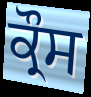
ਕ੍ਰੌਸ